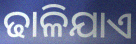
ଢାଳିଯାଏ